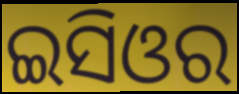
ଇସିଓର